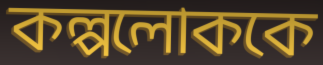
কল্পলোককে